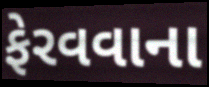
ફેરવવાના